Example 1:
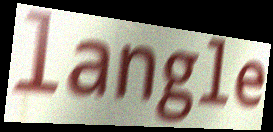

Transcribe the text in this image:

langle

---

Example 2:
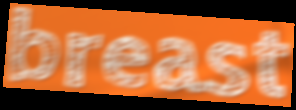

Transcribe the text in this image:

breast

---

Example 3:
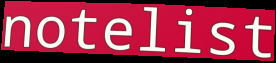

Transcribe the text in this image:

notelist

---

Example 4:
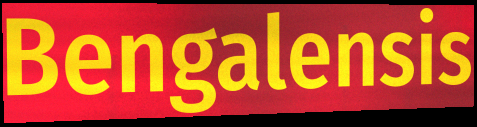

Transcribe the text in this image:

Bengalensis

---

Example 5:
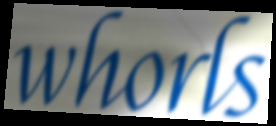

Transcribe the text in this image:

whorls